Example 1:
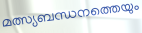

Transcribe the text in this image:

മത്സ്യബന്ധനത്തെയും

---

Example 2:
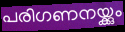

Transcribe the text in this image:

പരിഗണനയ്ക്കും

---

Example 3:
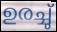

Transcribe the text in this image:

ഉരച്ചു്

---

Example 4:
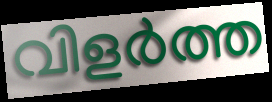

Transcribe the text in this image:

വിളർത്ത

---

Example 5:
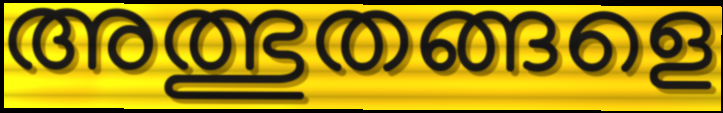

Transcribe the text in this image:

അത്ഭുതങ്ങളെ